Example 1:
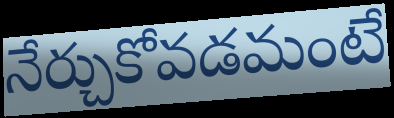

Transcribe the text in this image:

నేర్చుకోవడమంటే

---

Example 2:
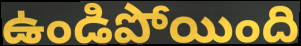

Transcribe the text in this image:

ఉండిపోయింది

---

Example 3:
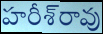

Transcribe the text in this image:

హరీశ్‌రావు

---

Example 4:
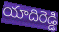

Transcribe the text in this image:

యాదిరెడ్డి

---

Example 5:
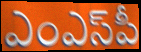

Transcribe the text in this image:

ఎంఎస్‌పీ